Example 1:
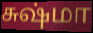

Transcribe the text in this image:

சுஷ்மா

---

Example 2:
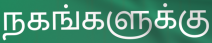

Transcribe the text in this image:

நகங்களுக்கு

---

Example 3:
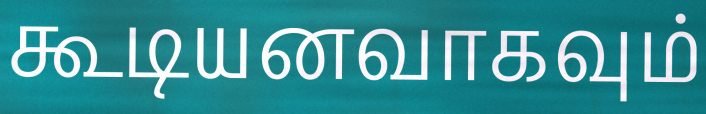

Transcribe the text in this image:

கூடியனவாகவும்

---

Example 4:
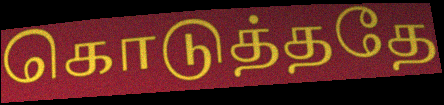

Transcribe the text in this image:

கொடுத்ததே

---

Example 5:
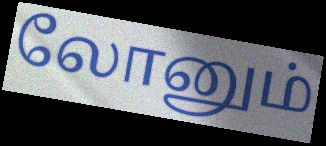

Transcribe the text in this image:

லோனும்